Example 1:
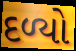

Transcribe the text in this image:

દળ્યો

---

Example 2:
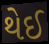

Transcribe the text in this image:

થેઈ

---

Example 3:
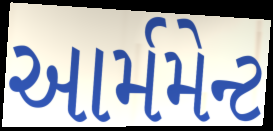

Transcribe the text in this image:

આર્મમેન્ટ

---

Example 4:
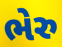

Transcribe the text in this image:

ભેરુ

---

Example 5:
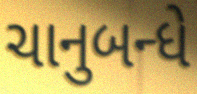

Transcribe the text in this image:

ચાનુબન્ધે